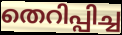
തെറിപ്പിച്ച